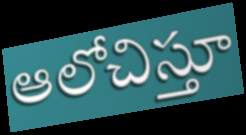
ఆలోచిస్తూ